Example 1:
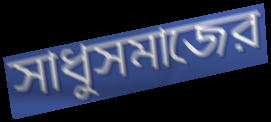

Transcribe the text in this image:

সাধুসমাজের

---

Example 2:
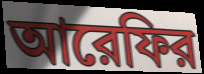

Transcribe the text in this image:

আরেফির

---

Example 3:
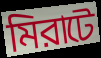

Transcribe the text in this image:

মিরাটে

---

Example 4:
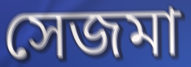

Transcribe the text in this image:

সেজমা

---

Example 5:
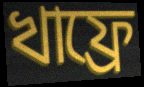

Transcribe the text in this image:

খাফ্রে